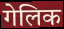
गेलिक